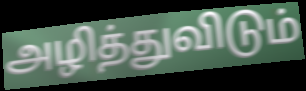
அழித்துவிடும்